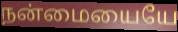
நன்மையையே